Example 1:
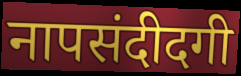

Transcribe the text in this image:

नापसंदीदगी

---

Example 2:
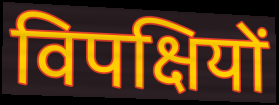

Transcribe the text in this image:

विपक्षियों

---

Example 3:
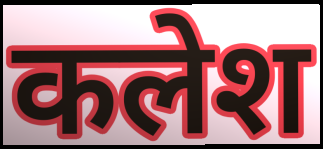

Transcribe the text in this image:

कलेश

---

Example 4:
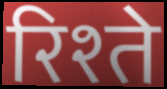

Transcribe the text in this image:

रिश्ते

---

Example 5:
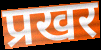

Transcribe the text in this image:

प्रखर